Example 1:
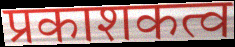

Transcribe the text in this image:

प्रकाशकत्व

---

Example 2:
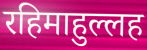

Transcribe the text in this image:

रहिमाहुल्लह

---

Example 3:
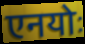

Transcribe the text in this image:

एनयोः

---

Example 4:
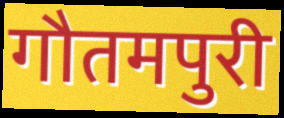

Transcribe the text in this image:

गौतमपुरी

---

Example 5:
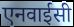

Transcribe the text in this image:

एनवाईसी